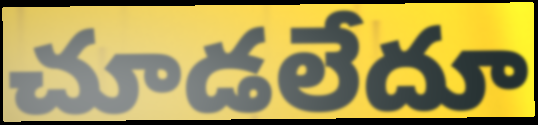
చూడలేదూ